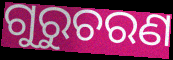
ଗୁରୁଚରଣ